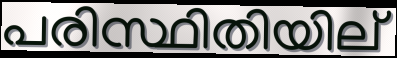
പരിസ്ഥിതിയില്